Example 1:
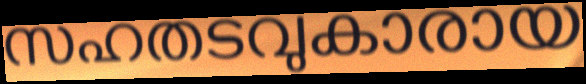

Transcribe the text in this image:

സഹതടവുകാരായ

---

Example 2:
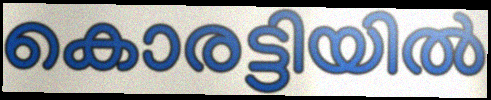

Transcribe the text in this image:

കൊരട്ടിയിൽ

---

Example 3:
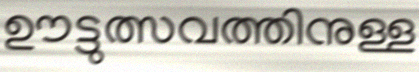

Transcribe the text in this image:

ഊട്ടുത്സവത്തിനുള്ള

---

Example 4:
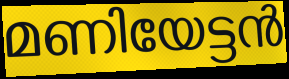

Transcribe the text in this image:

മണിയേട്ടൻ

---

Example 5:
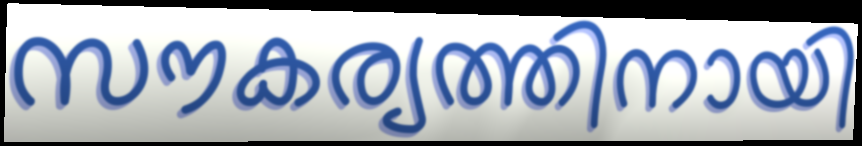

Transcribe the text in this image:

സൗകര്യത്തിനായി